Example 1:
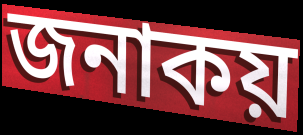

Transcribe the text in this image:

জনাকয়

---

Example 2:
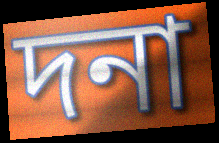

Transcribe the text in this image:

দনা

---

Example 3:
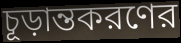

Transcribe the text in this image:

চূড়ান্তকরণের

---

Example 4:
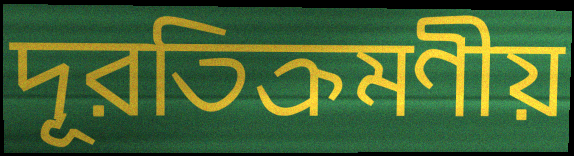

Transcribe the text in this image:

দূরতিক্রমণীয়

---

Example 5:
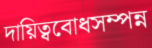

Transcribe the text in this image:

দায়িত্ববোধসম্পন্ন